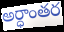
అర్ధాంతర